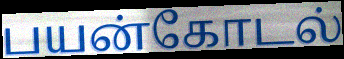
பயன்கோடல்